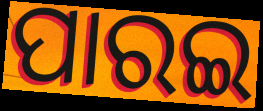
ପାରଇ